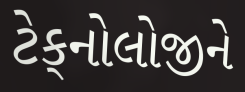
ટેક્‌નોલોજીને